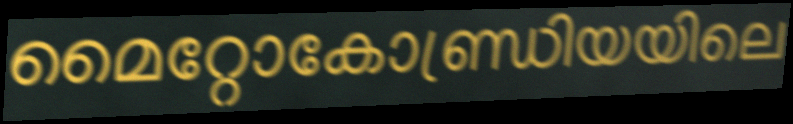
മൈറ്റോകോണ്ഡ്രിയയിലെ